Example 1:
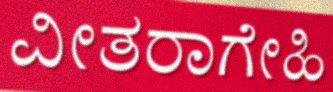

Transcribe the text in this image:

ವೀತರಾಗೇಹಿ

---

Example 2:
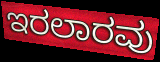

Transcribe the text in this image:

ಇರಲಾರವು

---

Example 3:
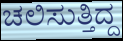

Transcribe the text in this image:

ಚಲಿಸುತ್ತಿದ್ದ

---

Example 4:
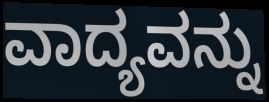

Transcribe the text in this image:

ವಾದ್ಯವನ್ನು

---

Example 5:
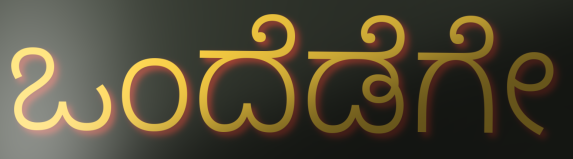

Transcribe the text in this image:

ಒಂದೆಡೆಗೇ